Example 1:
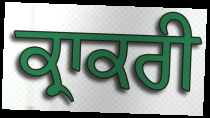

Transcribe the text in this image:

ਕ੍ਰਾਕਰੀ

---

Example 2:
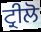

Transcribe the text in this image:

ਟ੍ਰੀਲੋ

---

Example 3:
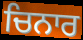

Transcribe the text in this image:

ਚਿਨਾਰ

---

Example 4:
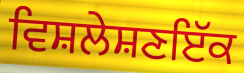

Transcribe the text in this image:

ਵਿਸ਼ਲੇਸ਼ਣਇੱਕ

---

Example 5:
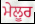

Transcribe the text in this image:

ਮੇਲੂਰ